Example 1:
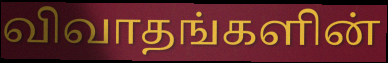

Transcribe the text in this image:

விவாதங்களின்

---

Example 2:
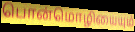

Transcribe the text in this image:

பொன்மொழியையும்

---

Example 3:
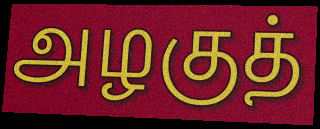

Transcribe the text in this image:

அழகுத்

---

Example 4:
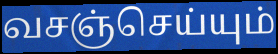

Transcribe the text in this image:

வசஞ்செய்யும்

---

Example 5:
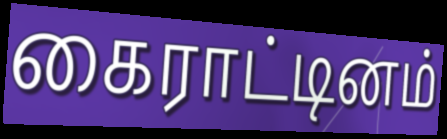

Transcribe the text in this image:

கைராட்டினம்